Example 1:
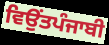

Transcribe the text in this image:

ਵਿਉਂਤਪੰਜਾਬੀ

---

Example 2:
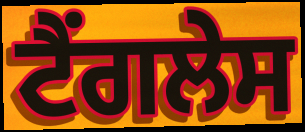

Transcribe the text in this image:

ਟੈਂਗਲੇਸ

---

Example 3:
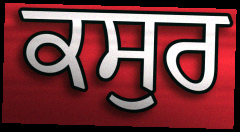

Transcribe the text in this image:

ਕਸੁਰ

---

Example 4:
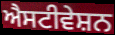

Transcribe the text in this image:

ਐਸਟੀਵੇਸ਼ਨ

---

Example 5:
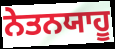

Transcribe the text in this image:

ਨੇਤਨਯਾਹੂ